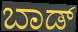
ಬಾಡ್